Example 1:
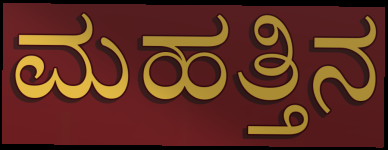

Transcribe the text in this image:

ಮಹತ್ತಿನ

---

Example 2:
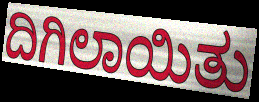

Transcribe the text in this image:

ದಿಗಿಲಾಯಿತು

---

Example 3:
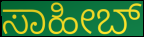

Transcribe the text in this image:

ಸಾಹೀಬ್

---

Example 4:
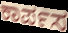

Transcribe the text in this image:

ಕಾರ್ಪಸ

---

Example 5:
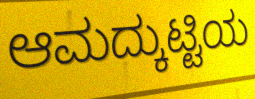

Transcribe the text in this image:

ಆಮದ್ಕುಟ್ಟಿಯ